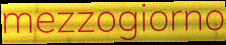
mezzogiorno